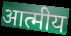
आत्मीय